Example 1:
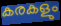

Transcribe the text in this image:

കരകളും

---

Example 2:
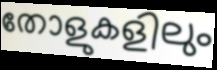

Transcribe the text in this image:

തോളുകളിലും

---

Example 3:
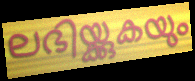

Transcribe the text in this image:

ലഭിയ്ക്കുകയും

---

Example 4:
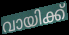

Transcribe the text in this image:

വായിക്ക്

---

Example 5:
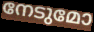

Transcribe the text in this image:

നേടുമോ